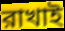
রাখাই